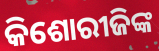
କିଶୋରୀଜିଙ୍କ